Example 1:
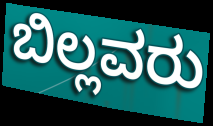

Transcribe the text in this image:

ಬಿಲ್ಲವರು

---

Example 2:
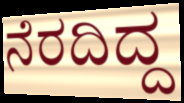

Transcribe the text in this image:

ನೆರದಿದ್ದ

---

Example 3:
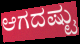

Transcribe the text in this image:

ಆಗದಷ್ಟು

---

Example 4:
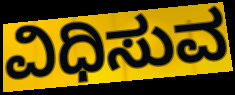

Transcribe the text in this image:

ವಿಧಿಸುವ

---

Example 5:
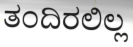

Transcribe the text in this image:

ತಂದಿರಲಿಲ್ಲ